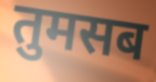
तुमसब